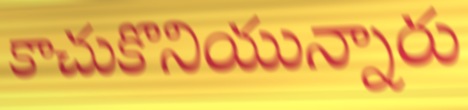
కాచుకొనియున్నారు